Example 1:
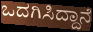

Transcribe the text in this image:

ಒದಗಿಸಿದ್ದಾನೆ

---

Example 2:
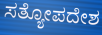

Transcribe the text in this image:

ಸತ್ಯೋಪದೇಶ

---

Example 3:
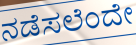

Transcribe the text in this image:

ನಡೆಸಲೆಂದೇ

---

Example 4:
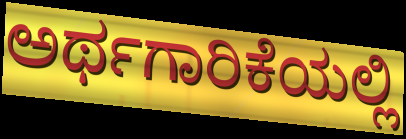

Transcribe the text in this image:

ಅರ್ಥಗಾರಿಕೆಯಲ್ಲಿ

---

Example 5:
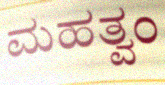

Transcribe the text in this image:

ಮಹತ್ವಂ